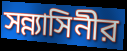
সন্ন্যাসিনীর